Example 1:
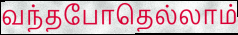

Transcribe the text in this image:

வந்தபோதெல்லாம்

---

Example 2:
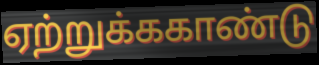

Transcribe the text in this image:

ஏற்றுக்ககாண்டு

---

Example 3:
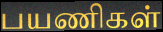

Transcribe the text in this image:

பயணிகள்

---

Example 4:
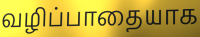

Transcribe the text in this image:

வழிப்பாதையாக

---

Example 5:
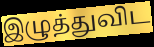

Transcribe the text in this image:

இழுத்துவிட